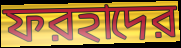
ফরহাদের